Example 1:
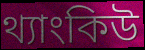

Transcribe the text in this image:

থ্যাংকিউ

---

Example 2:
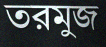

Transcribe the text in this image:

তরমুজ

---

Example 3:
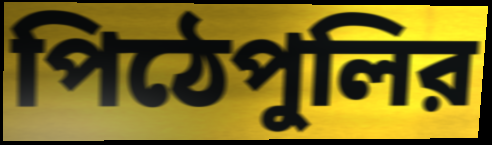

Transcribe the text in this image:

পিঠেপুলির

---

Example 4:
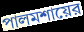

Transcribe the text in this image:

পালমশায়ের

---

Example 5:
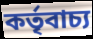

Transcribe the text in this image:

কর্তৃবাচ্য